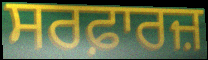
ਸਰਫ਼ਾਰਜ਼